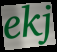
ekj